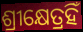
ଶ୍ରୀକ୍ଷେତ୍ରହିଁ